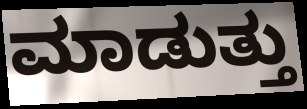
ಮಾಡುತ್ತು